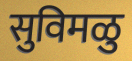
सुविमळु